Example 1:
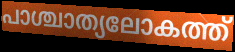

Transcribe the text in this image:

പാശ്ചാത്യലോകത്ത്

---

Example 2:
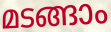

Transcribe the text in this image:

മടങ്ങാം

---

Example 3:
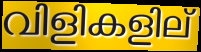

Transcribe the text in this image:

വിളികളില്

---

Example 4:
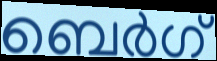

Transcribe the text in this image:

ബെർഗ്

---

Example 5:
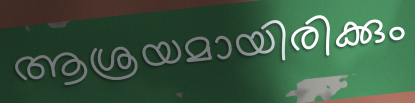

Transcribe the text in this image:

ആശ്രയമായിരിക്കും